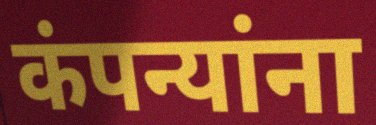
कंपन्यांना